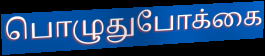
பொழுதுபோக்கை